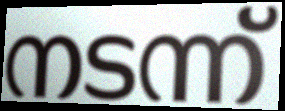
നടന്ന്